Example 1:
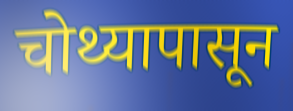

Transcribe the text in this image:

चोथ्यापासून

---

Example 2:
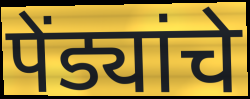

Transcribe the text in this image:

पेंड्यांचे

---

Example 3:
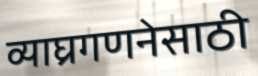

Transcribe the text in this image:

व्याघ्रगणनेसाठी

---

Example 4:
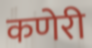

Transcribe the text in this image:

कणेरी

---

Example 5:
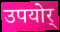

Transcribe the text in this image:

उपयोर्